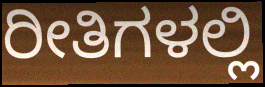
ರೀತಿಗಳಲ್ಲಿ